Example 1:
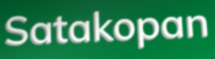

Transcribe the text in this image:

Satakopan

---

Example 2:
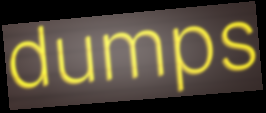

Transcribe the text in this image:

dumps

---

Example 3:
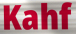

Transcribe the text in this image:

Kahf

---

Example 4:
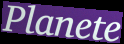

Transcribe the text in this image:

Planete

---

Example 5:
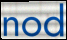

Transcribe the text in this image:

nod